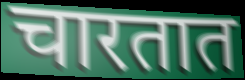
चारतात